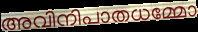
അവിനിപാതധമ്മോ